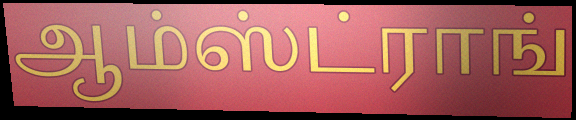
ஆம்ஸ்ட்ராங்